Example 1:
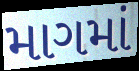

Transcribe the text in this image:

માગમાં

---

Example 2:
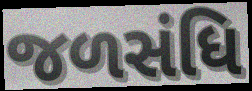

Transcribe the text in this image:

જળસંધિ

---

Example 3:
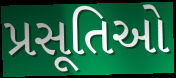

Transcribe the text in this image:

પ્રસૂતિઓ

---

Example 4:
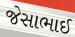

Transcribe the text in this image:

જેસાભાઈ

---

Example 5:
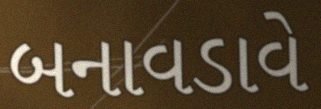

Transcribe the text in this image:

બનાવડાવે